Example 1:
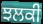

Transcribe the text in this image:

ਝਲਕੀ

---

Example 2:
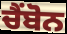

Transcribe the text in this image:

ਚੈਂਬੋਨ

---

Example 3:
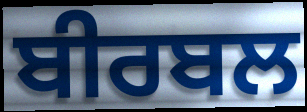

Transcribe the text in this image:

ਬੀਰਬਲ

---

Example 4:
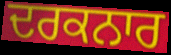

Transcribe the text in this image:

ਦਰਕਨਾਰ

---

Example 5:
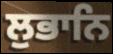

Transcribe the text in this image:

ਲੁਭਾਨਿ